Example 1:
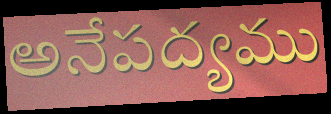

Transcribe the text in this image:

అనేపద్యము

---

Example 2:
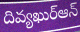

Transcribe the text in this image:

దివ్యఖుర్ఆన్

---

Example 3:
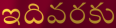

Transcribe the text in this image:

ఇదివరకు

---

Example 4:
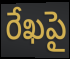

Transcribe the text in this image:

రేఖపై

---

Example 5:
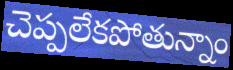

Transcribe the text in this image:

చెప్పలేకపోతున్నాం